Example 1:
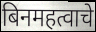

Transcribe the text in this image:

बिनमहत्वाचे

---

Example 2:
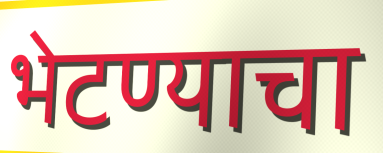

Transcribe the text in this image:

भेटण्याचा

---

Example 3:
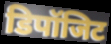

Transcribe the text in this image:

डिपॉजिट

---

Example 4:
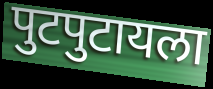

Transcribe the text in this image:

पुटपुटायला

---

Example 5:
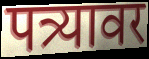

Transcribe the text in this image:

पत्र्यावर